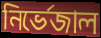
নির্ভেজাল